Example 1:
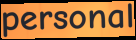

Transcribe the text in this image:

personal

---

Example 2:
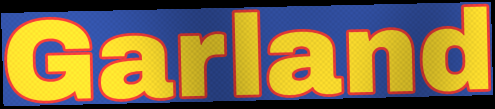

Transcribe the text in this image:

Garland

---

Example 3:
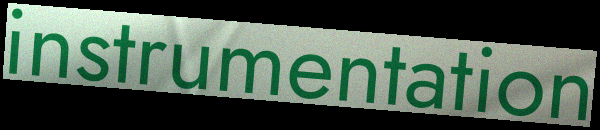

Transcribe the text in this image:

instrumentation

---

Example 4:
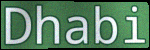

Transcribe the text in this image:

Dhabi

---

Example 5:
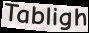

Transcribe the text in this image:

Tabligh